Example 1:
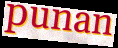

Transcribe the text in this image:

punan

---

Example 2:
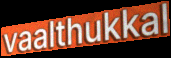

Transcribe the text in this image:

vaalthukkal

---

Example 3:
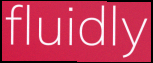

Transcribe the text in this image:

fluidly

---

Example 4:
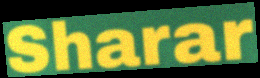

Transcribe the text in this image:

Sharar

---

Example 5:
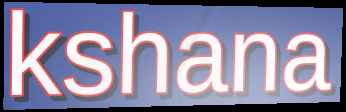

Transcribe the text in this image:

kshana